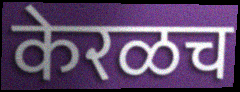
केरळच